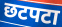
छटपटा